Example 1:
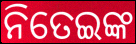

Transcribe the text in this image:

ନିତେଇଙ୍କ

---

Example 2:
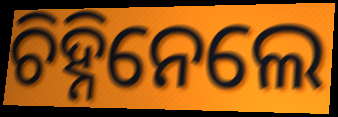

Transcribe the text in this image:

ଚିହ୍ନିନେଲେ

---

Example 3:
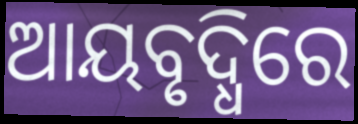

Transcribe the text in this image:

ଆୟବୃଦ୍ଧିରେ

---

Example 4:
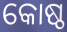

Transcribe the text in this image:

କୋଷ୍ଠ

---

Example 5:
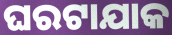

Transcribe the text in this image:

ଘରଟାଯାକ